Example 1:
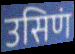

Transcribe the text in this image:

उसिणं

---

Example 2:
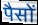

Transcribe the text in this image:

पैसों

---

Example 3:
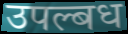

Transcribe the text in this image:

उपल्‍बध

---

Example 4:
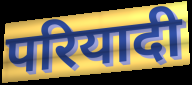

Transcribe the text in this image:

परियादी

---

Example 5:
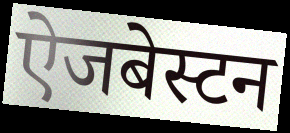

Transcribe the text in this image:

ऐजबेस्टन